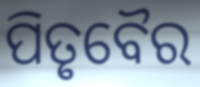
ପିତୃବୈର